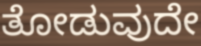
ತೋಡುವುದೇ